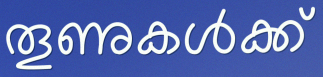
തൂണുകൾക്ക്